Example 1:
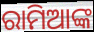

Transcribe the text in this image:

ରାମିଆଙ୍କ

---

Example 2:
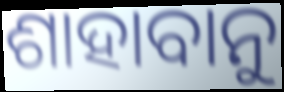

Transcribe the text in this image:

ଶାହାବାନୁ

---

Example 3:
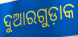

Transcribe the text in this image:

ଦୁଆରଗୁଡ଼ାକ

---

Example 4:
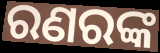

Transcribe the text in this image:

ରଣରଙ୍କ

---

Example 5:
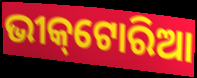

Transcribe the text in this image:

ଭୀକ୍‌ଟୋରିଆ